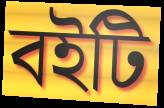
বইটি